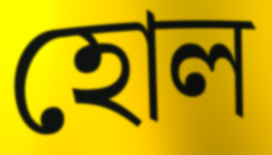
হোল